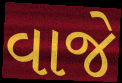
વાજે